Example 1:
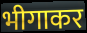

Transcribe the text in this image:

भीगाकर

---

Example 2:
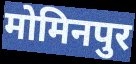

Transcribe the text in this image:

मोमिनपुर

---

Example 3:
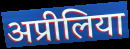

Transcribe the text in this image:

अप्रीलिया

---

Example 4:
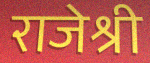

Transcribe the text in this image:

राजेश्री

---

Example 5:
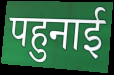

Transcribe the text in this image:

पहुनाई